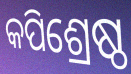
କପିଶ୍ରେଷ୍ଠ